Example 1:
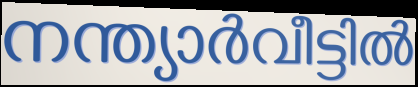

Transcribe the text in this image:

നന്ത്യാർവീട്ടിൽ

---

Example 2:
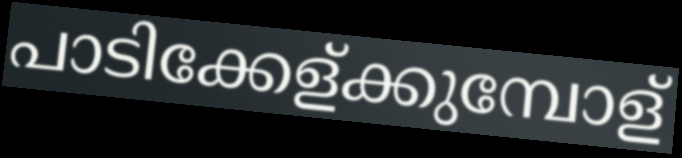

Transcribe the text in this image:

പാടിക്കേള്ക്കുമ്പോള്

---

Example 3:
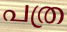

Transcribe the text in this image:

പത്ര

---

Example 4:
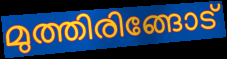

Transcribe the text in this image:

മുത്തിരിങ്ങോട്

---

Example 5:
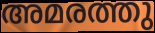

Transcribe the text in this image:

അമരത്തു